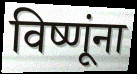
विष्णूंना